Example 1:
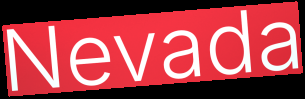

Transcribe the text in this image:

Nevada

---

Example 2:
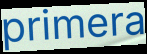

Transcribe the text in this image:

primera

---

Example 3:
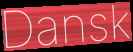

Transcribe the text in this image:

Dansk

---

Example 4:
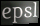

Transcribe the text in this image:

epsl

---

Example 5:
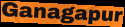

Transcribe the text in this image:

Ganagapur